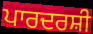
ਪਾਰਦਰਸ਼ੀ